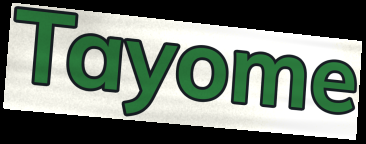
Tayome